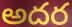
అదర